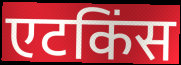
एटकिंस